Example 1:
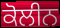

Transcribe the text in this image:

ਕੋਲੀਨ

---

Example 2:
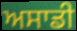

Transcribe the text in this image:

ਅਸਾਡੀ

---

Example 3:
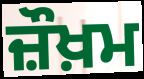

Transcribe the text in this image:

ਜ਼ੌਖ਼ਮ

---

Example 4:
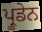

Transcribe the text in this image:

ਪ੍ਰੂਡੇਨ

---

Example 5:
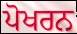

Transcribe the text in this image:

ਪੋਖਰਨ